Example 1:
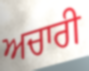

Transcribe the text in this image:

ਅਚਾਰੀ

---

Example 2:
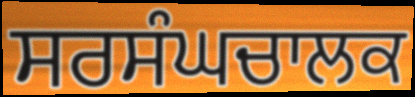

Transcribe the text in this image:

ਸਰਸੰਘਚਾਲਕ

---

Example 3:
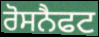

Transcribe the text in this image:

ਰੋਸਨੈਫਟ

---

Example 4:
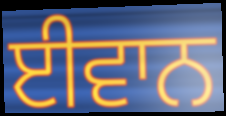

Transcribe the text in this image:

ਈਵਾਨ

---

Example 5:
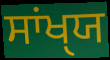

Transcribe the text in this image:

ਸਾਂਖੑਯ